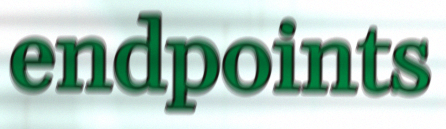
endpoints